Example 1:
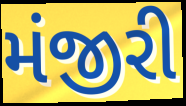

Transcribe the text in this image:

મંજીરી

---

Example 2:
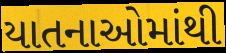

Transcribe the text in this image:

યાતનાઓમાંથી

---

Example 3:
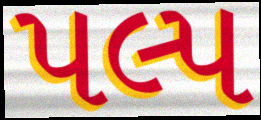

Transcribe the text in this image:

પલ્પ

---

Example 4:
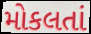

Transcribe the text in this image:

મોકલતાં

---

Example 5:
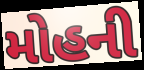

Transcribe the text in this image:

મોહની